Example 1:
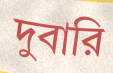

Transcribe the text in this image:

দুবারি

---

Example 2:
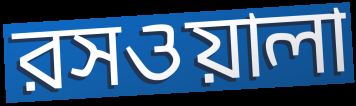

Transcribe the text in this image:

রসওয়ালা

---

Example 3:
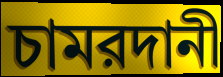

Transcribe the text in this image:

চামরদানী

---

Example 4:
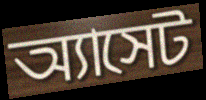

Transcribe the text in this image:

অ্যাসেট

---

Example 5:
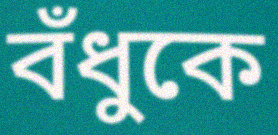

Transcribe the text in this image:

বঁধুকে